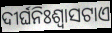
ଦୀର୍ଘନିଃଶ୍ୱାସଟାଏ